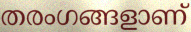
തരംഗങ്ങളാണ്